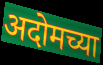
अदोमच्या